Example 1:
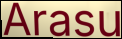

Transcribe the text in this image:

Arasu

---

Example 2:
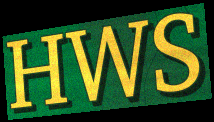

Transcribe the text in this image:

HWS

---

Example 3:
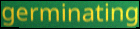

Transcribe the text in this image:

germinating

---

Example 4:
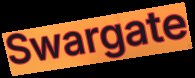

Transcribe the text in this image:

Swargate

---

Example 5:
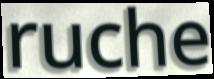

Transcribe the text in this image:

ruche